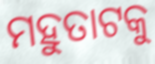
ମହୁତାଟକୁ